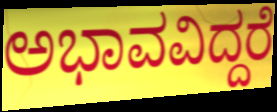
ಅಭಾವವಿದ್ದರೆ